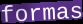
formas